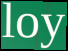
loy